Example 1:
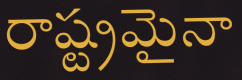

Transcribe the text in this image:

రాష్ట్రమైనా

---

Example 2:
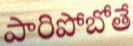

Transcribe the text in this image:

పారిపోబోతే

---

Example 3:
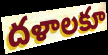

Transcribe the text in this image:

దళాలకూ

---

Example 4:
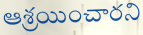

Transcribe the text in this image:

ఆశ్రయించారని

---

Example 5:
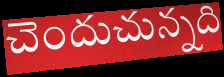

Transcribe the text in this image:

చెందుచున్నది